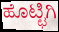
ಹೊಟ್ಟಿಗಿ